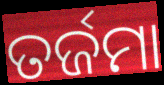
ତର୍ଜମା